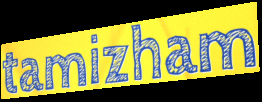
tamizham